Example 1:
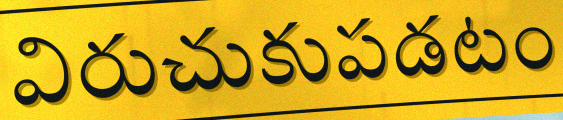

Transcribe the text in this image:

విరుచుకుపడటం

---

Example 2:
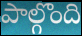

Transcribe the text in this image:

పాల్గొంది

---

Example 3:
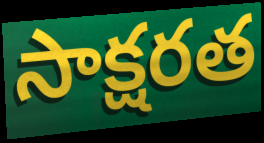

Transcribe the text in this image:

సాక్షరత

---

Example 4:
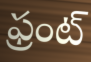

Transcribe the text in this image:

ఫ్రంట్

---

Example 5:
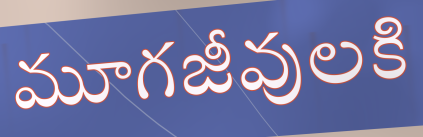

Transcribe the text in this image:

మూగజీవులకి